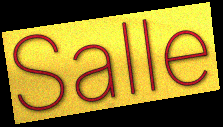
Salle